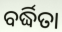
ବର୍ଦ୍ଧିତା